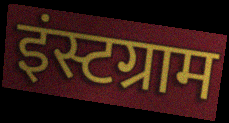
इंस्टग्राम